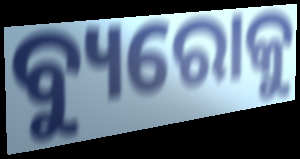
ବ୍ୟୁରୋକୁ